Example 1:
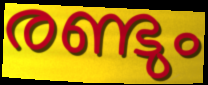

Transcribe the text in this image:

രണ്ടും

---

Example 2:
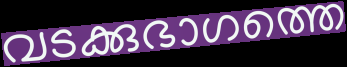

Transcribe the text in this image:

വടക്കുഭാഗത്തെ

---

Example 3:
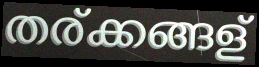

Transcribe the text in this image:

തര്ക്കങ്ങള്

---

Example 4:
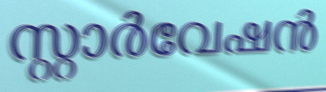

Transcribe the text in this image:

സ്റ്റാർവേഷൻ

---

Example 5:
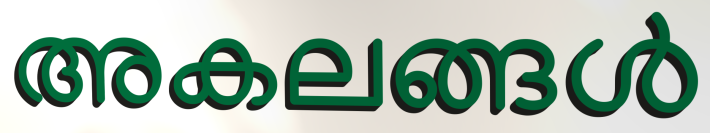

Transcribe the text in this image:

അകലങ്ങൾ